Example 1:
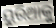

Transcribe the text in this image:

ୟୁରିଆକୁ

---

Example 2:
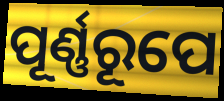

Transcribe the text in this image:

ପୂର୍ଣ୍ଣରୂପେ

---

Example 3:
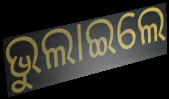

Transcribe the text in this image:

ଭୁଲାଇଲେ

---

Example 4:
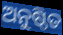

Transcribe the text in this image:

ଅନୁଷ୍ଠିତ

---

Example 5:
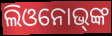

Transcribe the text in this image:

ଲିଓନୋଭ୍‌ଙ୍କ